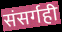
संसर्गही